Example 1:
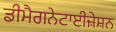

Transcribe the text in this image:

ਡੀਮੈਗਨੇਟਾਈਜ਼ੇਸ਼ਨ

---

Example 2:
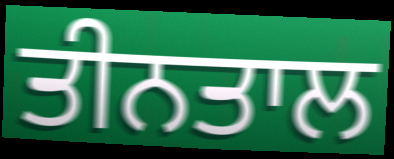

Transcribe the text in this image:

ਤੀਨਤਾਲ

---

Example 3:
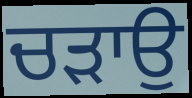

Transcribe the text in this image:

ਚੜਾਉ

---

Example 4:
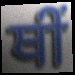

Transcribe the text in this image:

ਥੀਂ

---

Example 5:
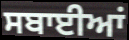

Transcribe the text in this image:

ਸਬਾਈਆਂ